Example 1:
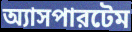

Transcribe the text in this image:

অ্যাসপারটেম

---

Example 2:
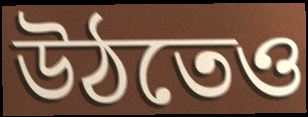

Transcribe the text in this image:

উঠতেও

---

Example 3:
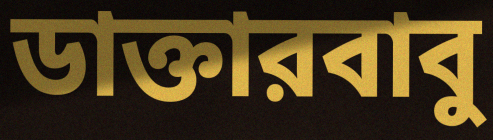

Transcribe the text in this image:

ডাক্তারবাবু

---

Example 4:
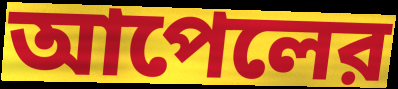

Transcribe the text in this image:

আপেলের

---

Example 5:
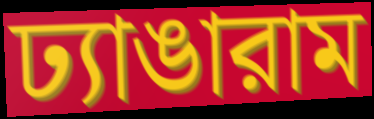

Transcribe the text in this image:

ঢ্যাঙারাম